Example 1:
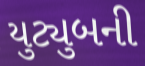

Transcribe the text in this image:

યુટ્યુબની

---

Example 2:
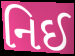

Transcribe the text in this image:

નિઈ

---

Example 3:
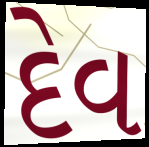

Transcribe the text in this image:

દેવ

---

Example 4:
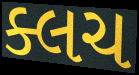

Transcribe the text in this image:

ક્લચ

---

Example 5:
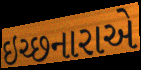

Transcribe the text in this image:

ઇચ્છનારાએ